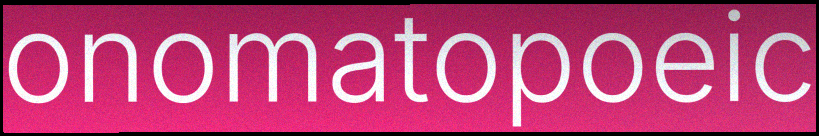
onomatopoeic